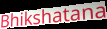
Bhikshatana